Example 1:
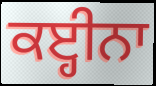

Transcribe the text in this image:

ਕੲ੍ਹੀਨਾ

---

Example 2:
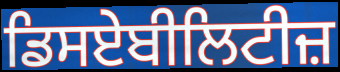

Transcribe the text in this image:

ਡਿਸਏਬੀਲਿਟੀਜ਼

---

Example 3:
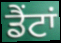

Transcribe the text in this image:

ਡੈਂਟਾਂ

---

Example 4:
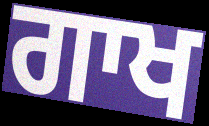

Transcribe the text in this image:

ਗਾਖ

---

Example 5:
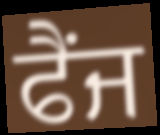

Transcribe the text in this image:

ਫੈਂਜ